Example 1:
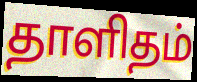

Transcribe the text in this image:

தாளிதம்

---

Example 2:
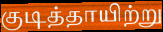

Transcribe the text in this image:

குடித்தாயிற்று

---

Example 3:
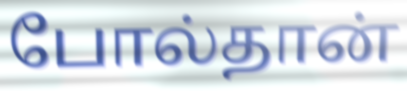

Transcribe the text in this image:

போல்தான்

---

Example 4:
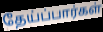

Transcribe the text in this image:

தேய்ப்பார்கள்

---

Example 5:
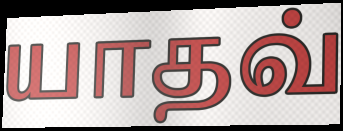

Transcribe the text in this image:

யாதவ்